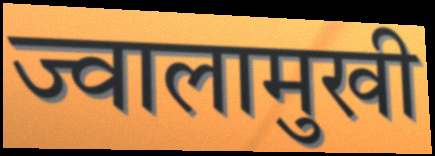
ज्वालामुखी